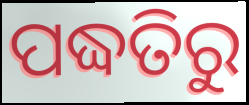
ପଦ୍ଧତିରୁ